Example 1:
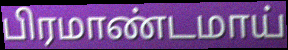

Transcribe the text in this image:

பிரமாண்டமாய்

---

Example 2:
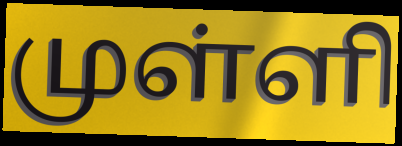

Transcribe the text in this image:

முள்ளி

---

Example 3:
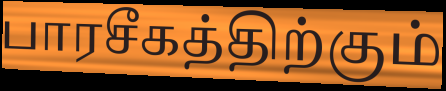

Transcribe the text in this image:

பாரசீகத்திற்கும்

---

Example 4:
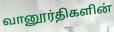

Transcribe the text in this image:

வானூர்திகளின்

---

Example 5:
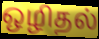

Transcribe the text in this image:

ஒழிதல்